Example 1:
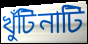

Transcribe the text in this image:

খুঁটিনাটি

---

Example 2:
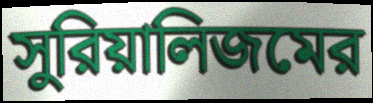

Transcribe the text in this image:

সুরিয়ালিজমের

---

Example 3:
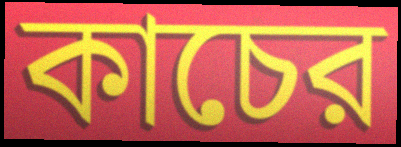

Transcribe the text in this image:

কাচের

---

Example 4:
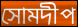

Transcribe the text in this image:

সোমদীপ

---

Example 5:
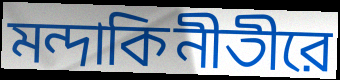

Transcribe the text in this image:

মন্দাকিনীতীরে